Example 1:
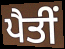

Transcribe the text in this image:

ਪੈਤੀਂ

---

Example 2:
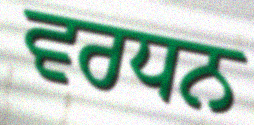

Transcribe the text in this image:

ਵਰਧਨ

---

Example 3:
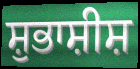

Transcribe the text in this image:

ਸ਼ੁਭਾਸ਼ੀਸ਼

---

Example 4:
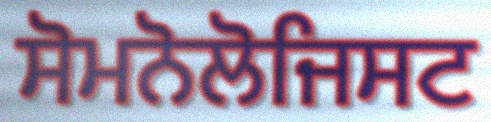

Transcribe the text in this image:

ਸੋਮਨੋਲੋਜਿਸਟ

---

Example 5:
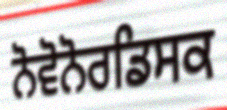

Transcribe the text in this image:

ਨੋਵੋਨੋਰਡਿਸਕ